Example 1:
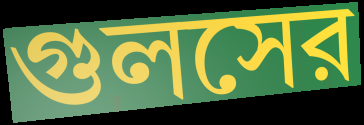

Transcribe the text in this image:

গুলসের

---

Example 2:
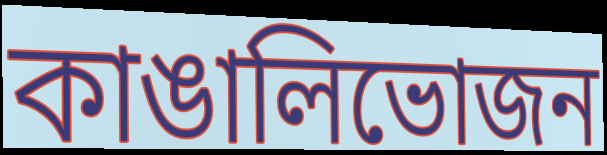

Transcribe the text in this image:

কাঙালিভোজন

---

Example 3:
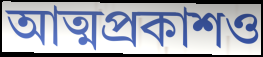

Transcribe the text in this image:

আত্মপ্রকাশও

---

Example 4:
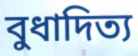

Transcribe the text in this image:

বুধাদিত্য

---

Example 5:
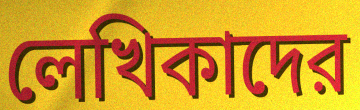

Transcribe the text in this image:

লেখিকাদের